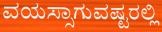
ವಯಸ್ಸಾಗುವಷ್ಟರಲ್ಲಿ